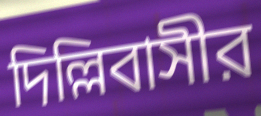
দিল্লিবাসীর